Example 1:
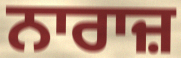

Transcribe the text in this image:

ਨਾਰਾਜ਼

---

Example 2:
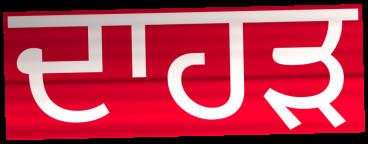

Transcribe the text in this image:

ਦਾਹੜ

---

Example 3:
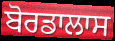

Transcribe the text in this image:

ਬੋਰਡਾਲਾਸ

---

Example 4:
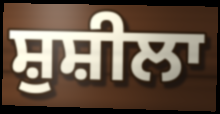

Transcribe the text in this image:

ਸ਼ੁਸ਼ੀਲਾ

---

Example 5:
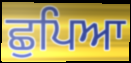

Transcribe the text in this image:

ਛੁਪਿਆ